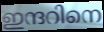
ഇന്ദറിനെ